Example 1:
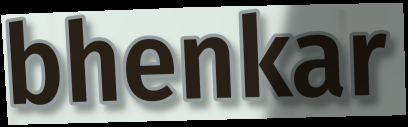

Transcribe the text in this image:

bhenkar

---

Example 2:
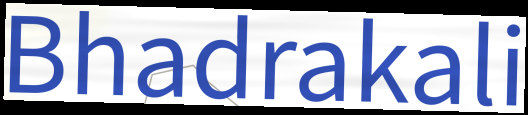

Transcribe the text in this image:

Bhadrakali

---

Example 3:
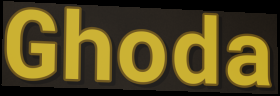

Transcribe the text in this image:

Ghoda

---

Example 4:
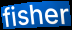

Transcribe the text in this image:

fisher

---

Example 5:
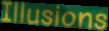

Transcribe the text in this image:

Illusions